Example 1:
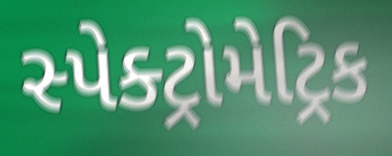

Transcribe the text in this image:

સ્પેક્ટ્રોમેટ્રિક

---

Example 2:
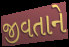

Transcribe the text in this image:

જીવતાને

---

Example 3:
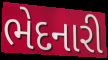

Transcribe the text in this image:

ભેદનારી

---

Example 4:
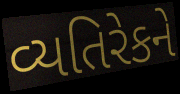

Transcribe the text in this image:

વ્યતિરેકને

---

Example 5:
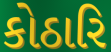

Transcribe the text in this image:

કોઠારિ